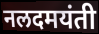
नलदमयंती